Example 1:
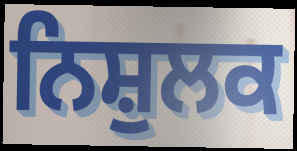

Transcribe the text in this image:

ਨਿਸ਼ੁਲਕ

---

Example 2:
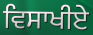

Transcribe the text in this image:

ਵਿਸਾਖੀਏੇ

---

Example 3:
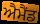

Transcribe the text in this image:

ਐਮੈਂਡ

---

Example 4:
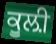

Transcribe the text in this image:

ਕੂਲ਼ੀ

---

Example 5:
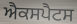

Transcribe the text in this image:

ਐਕਸਪੈਟਸ